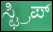
ಸ್ಟ್ರಿಪ್